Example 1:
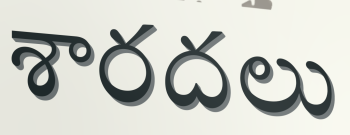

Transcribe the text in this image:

శారదలు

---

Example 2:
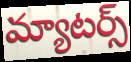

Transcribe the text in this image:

మ్యాటర్స్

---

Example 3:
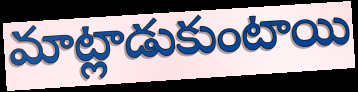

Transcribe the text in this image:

మాట్లాడుకుంటాయి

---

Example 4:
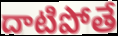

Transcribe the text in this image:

దాటిపోతే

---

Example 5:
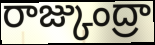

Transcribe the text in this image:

రాజ్కుంద్రా